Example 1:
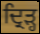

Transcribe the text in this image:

ਦ੍ਰਿੜ੍ਹ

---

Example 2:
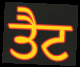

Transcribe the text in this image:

ਤੈਟ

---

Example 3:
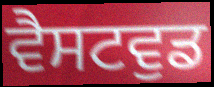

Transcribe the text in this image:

ਵੈਸਟਵੁਡ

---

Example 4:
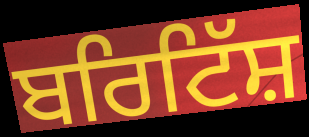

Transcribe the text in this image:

ਬਰਿਟਿੱਸ਼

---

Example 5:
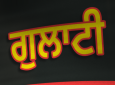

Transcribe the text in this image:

ਗੁਲਾਟੀ